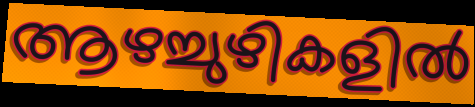
ആഴച്ചുഴികളിൽ